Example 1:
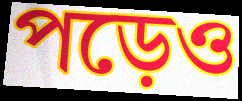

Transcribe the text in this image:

পড়েও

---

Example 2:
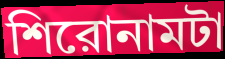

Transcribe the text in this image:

শিরোনামটা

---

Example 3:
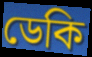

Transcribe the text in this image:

ডেকি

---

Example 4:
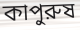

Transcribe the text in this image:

কাপুরুষ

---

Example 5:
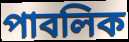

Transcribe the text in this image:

পাবলিক